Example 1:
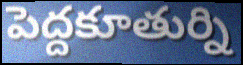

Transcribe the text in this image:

పెద్దకూతుర్ని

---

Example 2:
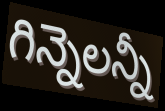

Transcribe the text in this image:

గిన్నెలన్నీ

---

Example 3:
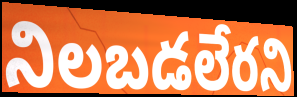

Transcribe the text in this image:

నిలబడలేరని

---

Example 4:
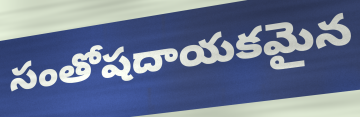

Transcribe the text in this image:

సంతోషదాయకమైన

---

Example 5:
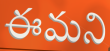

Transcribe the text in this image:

ఈమని